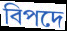
বিপদে